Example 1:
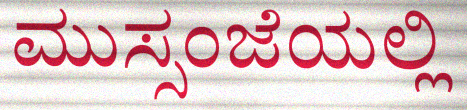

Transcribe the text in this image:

ಮುಸ್ಸಂಜೆಯಲ್ಲಿ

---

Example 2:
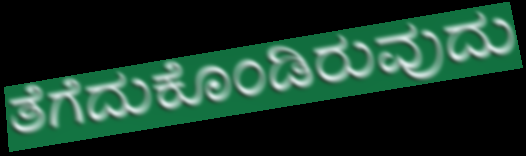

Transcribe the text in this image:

ತೆಗೆದುಕೊಂಡಿರುವುದು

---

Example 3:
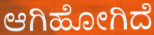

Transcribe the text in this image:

ಆಗಿಹೋಗಿದೆ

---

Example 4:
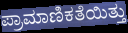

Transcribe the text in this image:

ಪ್ರಾಮಾಣಿಕತೆಯಿತ್ತು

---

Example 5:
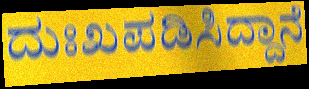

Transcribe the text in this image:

ದುಃಖಪಡಿಸಿದ್ದಾನೆ